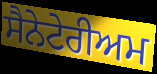
ਸੈਨੇਟੇਰੀਅਮ